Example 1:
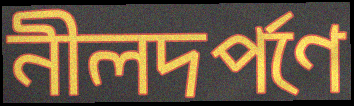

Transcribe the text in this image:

নীলদর্পণে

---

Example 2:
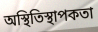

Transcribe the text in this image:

অস্থিতিস্থাপকতা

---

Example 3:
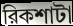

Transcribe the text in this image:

রিকশাটা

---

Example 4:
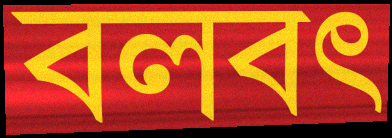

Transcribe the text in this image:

বলবৎ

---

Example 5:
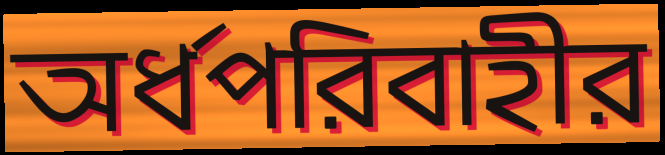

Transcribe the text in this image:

অর্ধপরিবাহীর